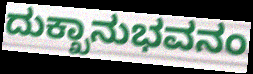
ದುಕ್ಖಾನುಭವನಂ